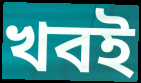
খবই